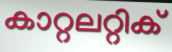
കാറ്റലറ്റിക്